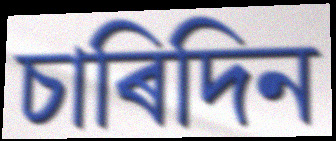
চাৰিদিন